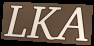
LKA